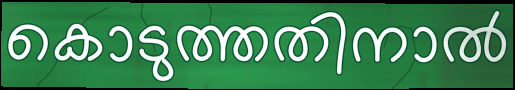
കൊടുത്തതിനാൽ